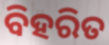
ବିହରିତ